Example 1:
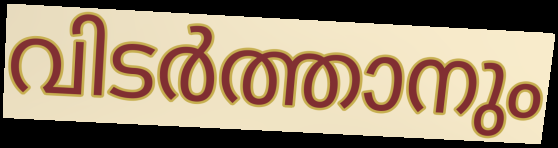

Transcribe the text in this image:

വിടർത്താനും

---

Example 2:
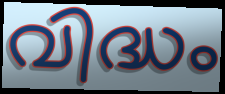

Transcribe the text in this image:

വിദ്ധം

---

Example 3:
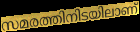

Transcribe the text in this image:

സമരത്തിനിടയിലാണ്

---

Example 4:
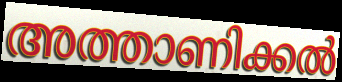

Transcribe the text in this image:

അത്താണിക്കൽ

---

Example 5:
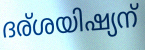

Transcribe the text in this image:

ദര്ശയിഷ്യന്